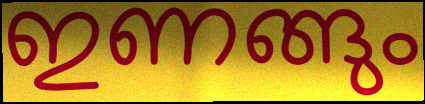
ഇണങ്ങും